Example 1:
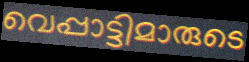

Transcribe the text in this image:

വെപ്പാട്ടിമാരുടെ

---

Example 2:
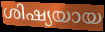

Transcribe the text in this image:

ശിഷ്യയായ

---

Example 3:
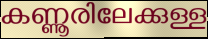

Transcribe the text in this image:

കണ്ണൂരിലേക്കുള്ള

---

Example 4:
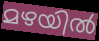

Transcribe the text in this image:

മഴയിൽ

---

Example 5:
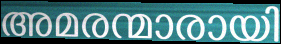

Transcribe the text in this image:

അമരന്മാരായി